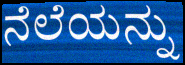
ನೆಲೆಯನ್ನು